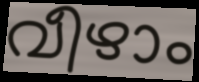
വീഴാം